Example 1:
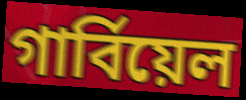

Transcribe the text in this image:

গার্বিয়েল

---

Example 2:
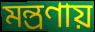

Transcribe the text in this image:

মন্ত্রণায়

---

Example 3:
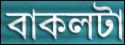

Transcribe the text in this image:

বাকলটা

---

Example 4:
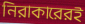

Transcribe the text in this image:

নিরাকারেরই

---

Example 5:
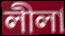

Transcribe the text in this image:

লীলা